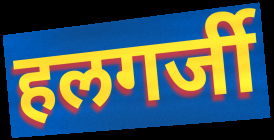
हलगर्जी